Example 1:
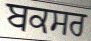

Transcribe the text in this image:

ਬਕਸਰ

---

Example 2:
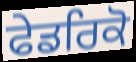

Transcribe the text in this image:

ਫੇਡਰਿਕੋ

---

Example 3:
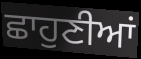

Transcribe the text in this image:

ਛਾਹੁਣੀਆਂ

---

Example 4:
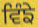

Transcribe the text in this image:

ਵਿੰਙੇ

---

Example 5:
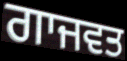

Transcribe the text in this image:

ਗਾਜਵਤ